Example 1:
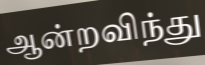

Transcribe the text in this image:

ஆன்றவிந்து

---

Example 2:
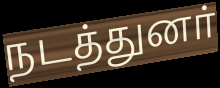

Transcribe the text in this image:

நடத்துனர்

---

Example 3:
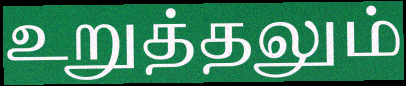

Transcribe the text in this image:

உறுத்தலும்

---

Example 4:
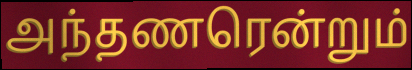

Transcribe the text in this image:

அந்தணரென்றும்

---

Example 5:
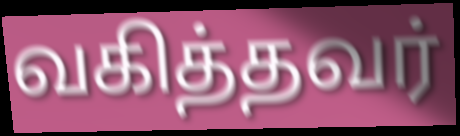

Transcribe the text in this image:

வகித்தவர்